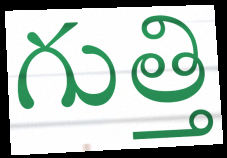
గుత్తి